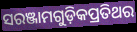
ସରଞ୍ଜାମଗୁଡ଼ିକପ୍ରତିଥର